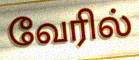
வேரில்